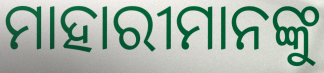
ମାହାରୀମାନଙ୍କୁ